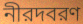
নীরদবরণ